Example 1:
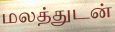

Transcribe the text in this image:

மலத்துடன்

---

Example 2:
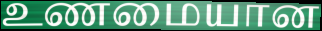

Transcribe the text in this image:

உணமையான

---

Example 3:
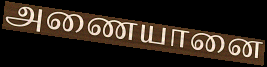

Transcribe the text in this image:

அணையானை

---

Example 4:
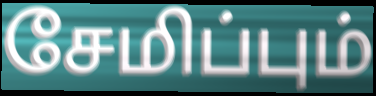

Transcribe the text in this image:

சேமிப்பும்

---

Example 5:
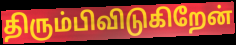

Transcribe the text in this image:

திரும்பிவிடுகிறேன்